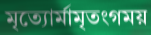
মৃত্যোর্মামৃতংগময়